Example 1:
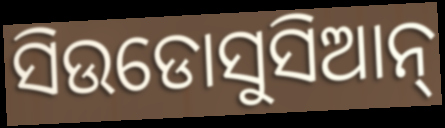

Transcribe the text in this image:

ସିଉଡୋସୁସିଆନ୍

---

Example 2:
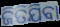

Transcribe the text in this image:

ଜିତିଯିବା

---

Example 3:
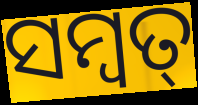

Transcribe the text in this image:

ସମ୍ବତ୍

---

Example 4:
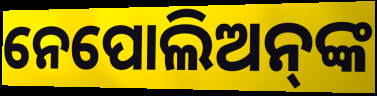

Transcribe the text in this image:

ନେପୋଲିଅନ୍‌ଙ୍କ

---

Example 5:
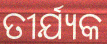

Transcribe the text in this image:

ତୀର୍ଯ୍ୟକ